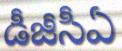
డీజీసీఏ